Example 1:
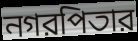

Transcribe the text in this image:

নগরপিতার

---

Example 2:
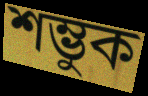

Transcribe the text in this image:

শম্ভুক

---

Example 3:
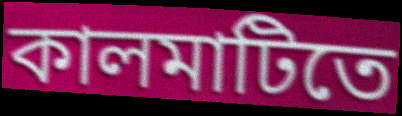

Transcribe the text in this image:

কালমাটিতে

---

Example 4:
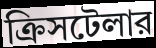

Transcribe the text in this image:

ক্রিসটেলার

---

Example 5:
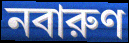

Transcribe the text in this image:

নবারুণ